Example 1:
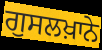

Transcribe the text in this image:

ਗੁਸਲਖ਼ਾਨੇ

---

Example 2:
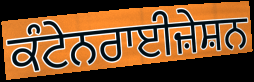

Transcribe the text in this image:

ਕੰਟੇਨਰਾਈਜ਼ੇਸ਼ਨ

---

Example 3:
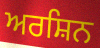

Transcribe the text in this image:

ਅਰਸ਼ਿਨ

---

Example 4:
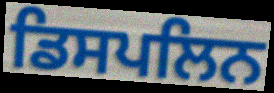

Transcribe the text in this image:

ਡਿਸਪਲਿਨ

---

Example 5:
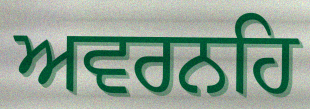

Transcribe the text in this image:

ਅਵਰਨਹਿ